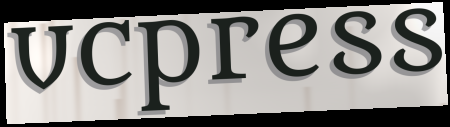
ucpress